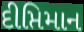
દીપ્તિમાન